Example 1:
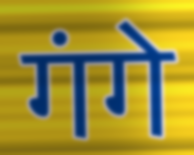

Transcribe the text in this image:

गंगे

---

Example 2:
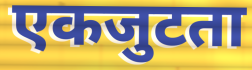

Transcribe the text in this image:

एकजुटता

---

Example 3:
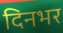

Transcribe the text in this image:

दिनभर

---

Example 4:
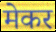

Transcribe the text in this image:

मेकर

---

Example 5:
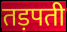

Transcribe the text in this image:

तड़पती